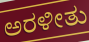
ಅರಳೀತು